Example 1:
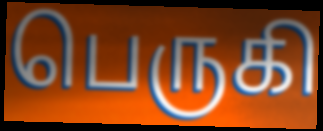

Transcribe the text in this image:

பெருகி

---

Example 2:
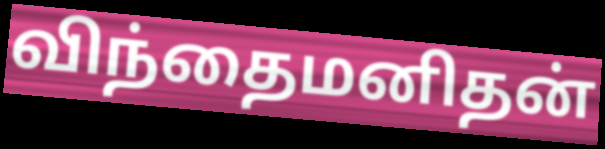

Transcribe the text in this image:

விந்தைமனிதன்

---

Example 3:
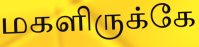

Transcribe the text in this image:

மகளிருக்கே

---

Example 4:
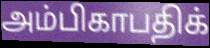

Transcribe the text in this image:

அம்பிகாபதிக்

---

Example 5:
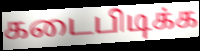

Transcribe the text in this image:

கடைபிடிக்க